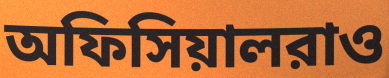
অফিসিয়ালরাও